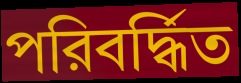
পরিবর্দ্ধিত